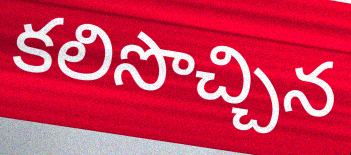
కలిసొచ్చిన